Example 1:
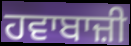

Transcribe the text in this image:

ਹਵਾਬਾਜ਼ੀ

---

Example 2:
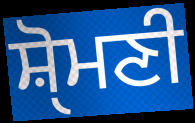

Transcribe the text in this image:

ਸ਼ੑੋਮਣੀ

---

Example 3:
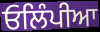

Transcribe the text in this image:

ਓਲਿੰਪੀਆ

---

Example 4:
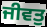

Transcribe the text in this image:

ਜੀਵਤੁ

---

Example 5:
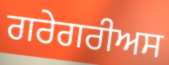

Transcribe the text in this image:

ਗਰੇਗਰੀਅਸ